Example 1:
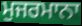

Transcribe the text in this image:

ਮੁਜਰਮਾਨਾ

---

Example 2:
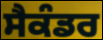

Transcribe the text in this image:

ਸੈਕੰਡਰ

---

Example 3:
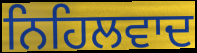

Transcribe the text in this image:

ਨਿਹਿਲਵਾਦ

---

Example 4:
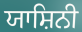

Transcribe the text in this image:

ਯਾਸ਼ਿਨੀ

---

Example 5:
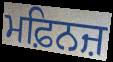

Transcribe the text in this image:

ਮਫ਼ਿਨਜ਼